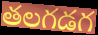
తలగడగ